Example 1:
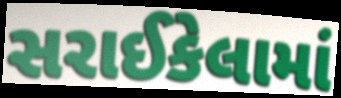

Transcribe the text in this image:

સરાઈકેલામાં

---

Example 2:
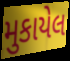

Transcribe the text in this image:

મુકાયેલ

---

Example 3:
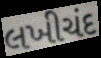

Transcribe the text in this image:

લખીચંદ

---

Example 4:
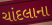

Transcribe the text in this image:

ચાંદલાના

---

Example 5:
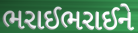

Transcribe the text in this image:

ભરાઈભરાઈને